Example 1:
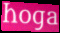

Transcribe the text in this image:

hoga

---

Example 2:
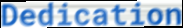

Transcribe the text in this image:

Dedication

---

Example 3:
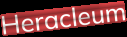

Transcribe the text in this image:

Heracleum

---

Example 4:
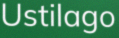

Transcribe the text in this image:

Ustilago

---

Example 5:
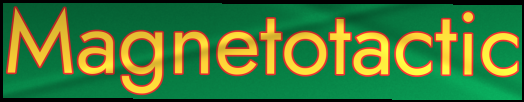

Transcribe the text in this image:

Magnetotactic